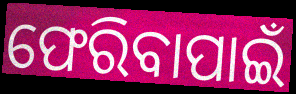
ଫେରିବାପାଇଁ